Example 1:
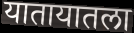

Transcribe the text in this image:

यातायातला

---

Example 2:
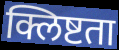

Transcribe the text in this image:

क्लिष्टता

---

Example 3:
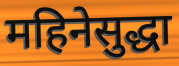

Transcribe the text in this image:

महिनेसुद्धा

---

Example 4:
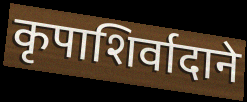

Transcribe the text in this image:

कृपाशिर्वादाने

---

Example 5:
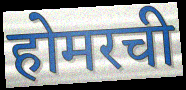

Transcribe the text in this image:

होमरची